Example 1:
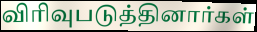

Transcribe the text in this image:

விரிவுபடுத்தினார்கள்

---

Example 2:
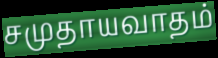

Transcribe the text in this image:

சமுதாயவாதம்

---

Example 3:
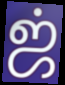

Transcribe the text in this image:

ஜ்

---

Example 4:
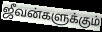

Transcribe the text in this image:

ஜீவன்களுக்கும்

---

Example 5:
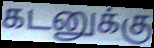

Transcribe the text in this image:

கடனுக்கு